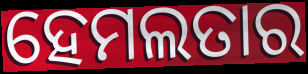
ହେମଲତାର